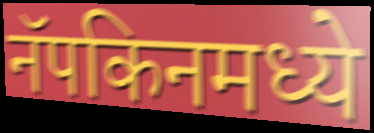
नॅपकिनमध्ये